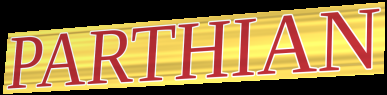
PARTHIAN